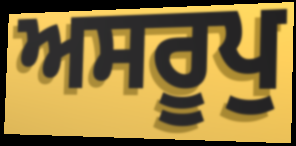
ਅਸਰੂਪੁ